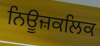
ਨਿਊਜ਼ਕਲਿਕ